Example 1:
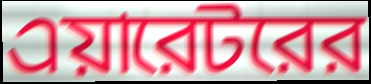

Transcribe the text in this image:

এয়ারেটরের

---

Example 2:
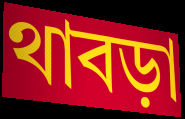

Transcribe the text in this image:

থাবড়া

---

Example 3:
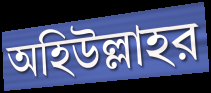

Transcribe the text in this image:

অহিউল্লাহর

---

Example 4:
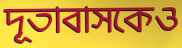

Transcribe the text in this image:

দূতাবাসকেও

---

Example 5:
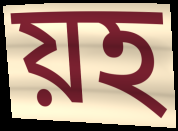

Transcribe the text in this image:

য়হ